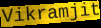
Vikramjit